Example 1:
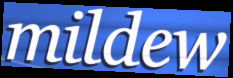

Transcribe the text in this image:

mildew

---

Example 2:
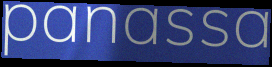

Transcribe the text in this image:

panassa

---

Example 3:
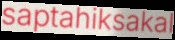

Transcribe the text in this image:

saptahiksakal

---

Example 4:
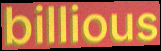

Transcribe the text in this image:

billious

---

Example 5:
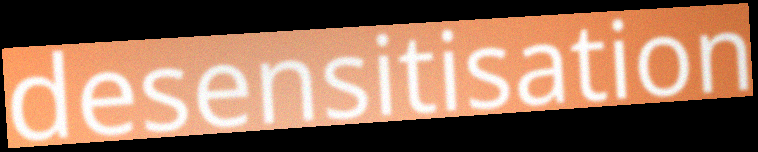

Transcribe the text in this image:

desensitisation